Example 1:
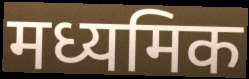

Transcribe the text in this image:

मध्यमिक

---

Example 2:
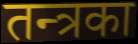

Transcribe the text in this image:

तन्त्रका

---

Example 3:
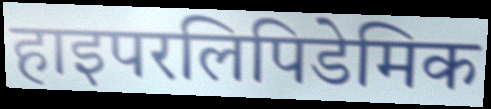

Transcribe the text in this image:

हाइपरलिपिडेमिक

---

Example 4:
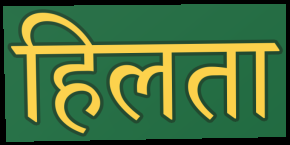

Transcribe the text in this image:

हिलता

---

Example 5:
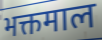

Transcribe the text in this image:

भक्तमाल